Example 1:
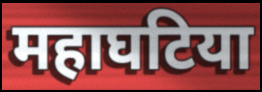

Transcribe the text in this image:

महाघटिया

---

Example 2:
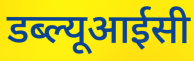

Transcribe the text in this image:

डब्ल्यूआईसी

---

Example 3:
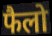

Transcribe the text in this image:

फैलो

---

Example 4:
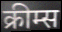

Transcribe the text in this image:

क्रीम्‍स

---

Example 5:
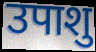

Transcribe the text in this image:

उपाशु